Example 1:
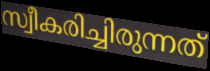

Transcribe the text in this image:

സ്വീകരിച്ചിരുന്നത്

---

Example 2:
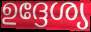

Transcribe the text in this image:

ഉദ്ദേശ്യ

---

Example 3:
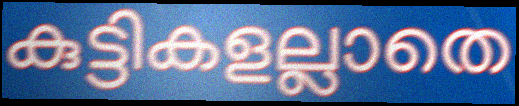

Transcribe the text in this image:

കുട്ടികളല്ലാതെ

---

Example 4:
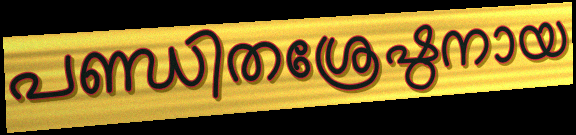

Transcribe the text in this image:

പണ്ഡിതശ്രേഷ്ഠനായ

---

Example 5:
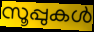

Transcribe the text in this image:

സൂപ്പുകൾ